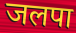
जलपा